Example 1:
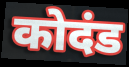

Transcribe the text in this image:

कोदंड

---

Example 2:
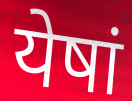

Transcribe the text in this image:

येषां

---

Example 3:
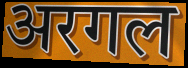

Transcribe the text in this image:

अरगल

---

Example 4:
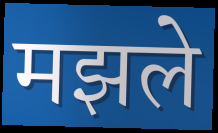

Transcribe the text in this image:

मझले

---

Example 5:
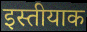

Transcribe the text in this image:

इस्तीयाक